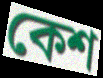
কেশ